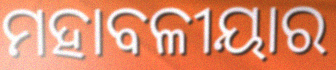
ମହାବଳୀୟାର